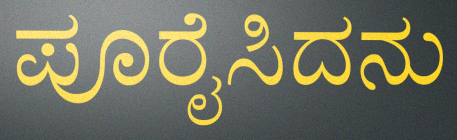
ಪೂರೈಸಿದನು